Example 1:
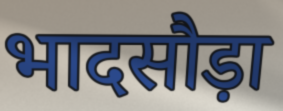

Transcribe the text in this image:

भादसौड़ा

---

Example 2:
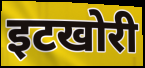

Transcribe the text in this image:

इटखोरी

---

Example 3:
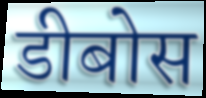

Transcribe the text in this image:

डीबोस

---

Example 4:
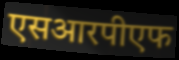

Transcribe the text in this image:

एसआरपीएफ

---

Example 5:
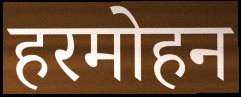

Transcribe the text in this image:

हरमोहन